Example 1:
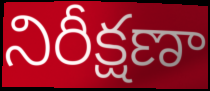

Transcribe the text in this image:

నిరీక్షణా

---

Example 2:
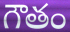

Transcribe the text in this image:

గౌతం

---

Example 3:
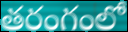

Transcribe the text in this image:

తరంగంలో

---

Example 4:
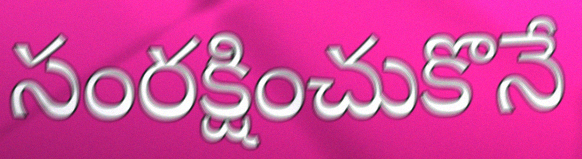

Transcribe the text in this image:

సంరక్షించుకొనే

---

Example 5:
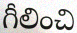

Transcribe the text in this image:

గీలించి